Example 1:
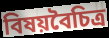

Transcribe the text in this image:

বিষয়বৈচিত্র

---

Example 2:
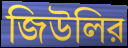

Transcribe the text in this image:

জিউলির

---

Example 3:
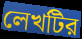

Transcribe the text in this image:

লেখটির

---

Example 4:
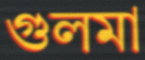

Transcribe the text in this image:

গুলমা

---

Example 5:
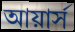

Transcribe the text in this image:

আয়ার্স